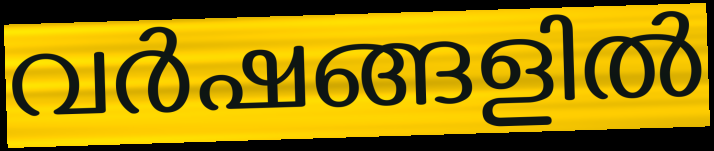
വർഷങ്ങളിൽ